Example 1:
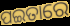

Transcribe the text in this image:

ପଇତାରେ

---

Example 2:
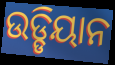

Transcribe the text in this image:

ଉଡ୍ଡିୟାନ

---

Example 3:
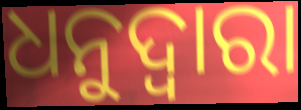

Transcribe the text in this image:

ଧନୁଦ୍ୱାରା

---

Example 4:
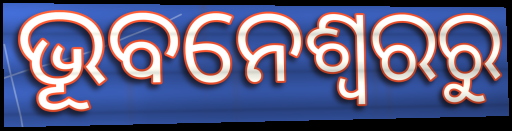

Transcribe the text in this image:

ଭୂବନେଶ୍ୱରରୁ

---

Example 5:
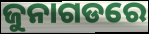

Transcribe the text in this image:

ଜୁନାଗଡରେ